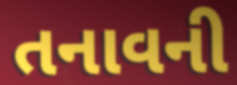
તનાવની